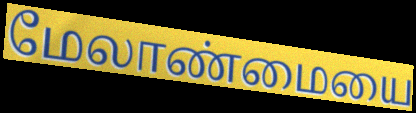
மேலாண்மையை